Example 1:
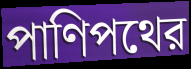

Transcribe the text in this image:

পাণিপথের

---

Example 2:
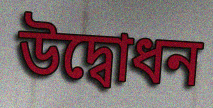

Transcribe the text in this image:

উদ্বোধন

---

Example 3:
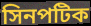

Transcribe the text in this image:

সিনপটিক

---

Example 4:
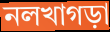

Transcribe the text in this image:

নলখাগড়া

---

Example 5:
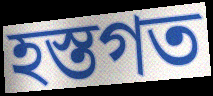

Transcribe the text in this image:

হস্তগত